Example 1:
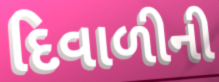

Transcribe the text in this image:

દિવાળીની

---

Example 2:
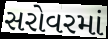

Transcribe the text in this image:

સરોવરમાં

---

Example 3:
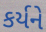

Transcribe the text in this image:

કર્યને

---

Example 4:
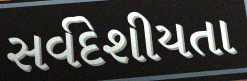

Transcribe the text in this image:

સર્વદેશીયતા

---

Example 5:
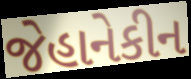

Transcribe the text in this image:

જેહાનેકીન